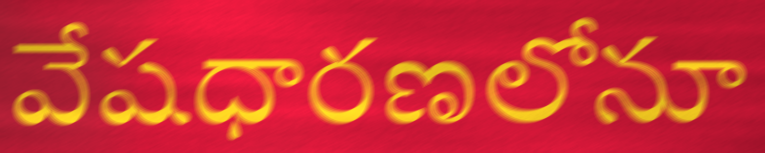
వేషధారణలోనూ